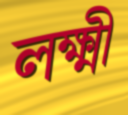
লক্ষ্মী